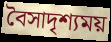
বৈসাদৃশ্যময়